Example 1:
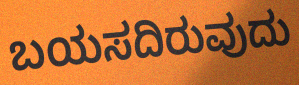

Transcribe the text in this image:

ಬಯಸದಿರುವುದು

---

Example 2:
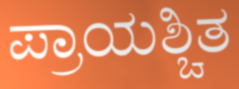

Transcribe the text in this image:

ಪ್ರಾಯಶ್ಚಿತ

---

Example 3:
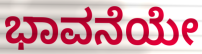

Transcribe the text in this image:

ಭಾವನೆಯೇ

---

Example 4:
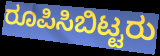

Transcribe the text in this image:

ರೂಪಿಸಿಬಿಟ್ಟರು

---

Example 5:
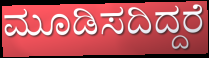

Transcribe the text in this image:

ಮೂಡಿಸದಿದ್ದರೆ